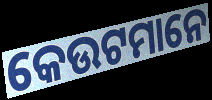
କେଉଟମାନେ